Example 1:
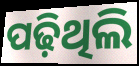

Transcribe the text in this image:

ପଢ଼ିଥିଲି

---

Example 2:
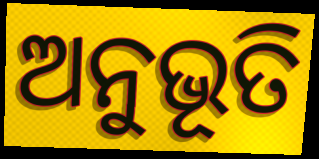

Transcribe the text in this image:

ଅନୁଭୂତି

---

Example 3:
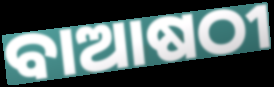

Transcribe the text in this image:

ବାଆଷଠୀ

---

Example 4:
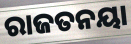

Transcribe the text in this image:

ରାଜତନୟା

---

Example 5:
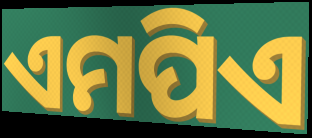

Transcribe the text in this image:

ଏମପିଏ